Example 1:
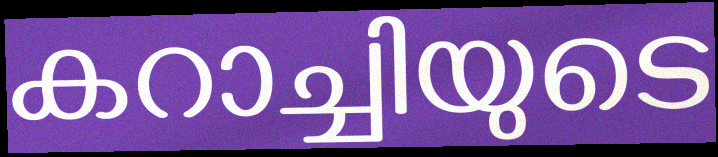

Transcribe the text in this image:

കറാച്ചിയുടെ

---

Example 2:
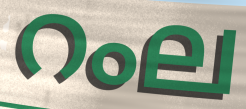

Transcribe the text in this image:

റംല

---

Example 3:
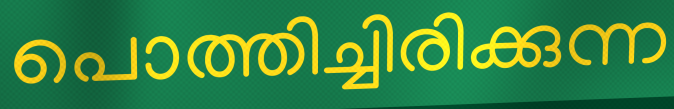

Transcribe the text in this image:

പൊത്തിച്ചിരിക്കുന്ന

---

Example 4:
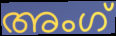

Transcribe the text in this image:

അംഗ്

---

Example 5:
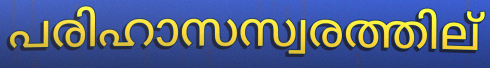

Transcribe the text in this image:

പരിഹാസസ്വരത്തില്